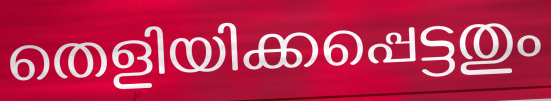
തെളിയിക്കപ്പെട്ടതും